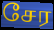
சேர